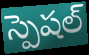
స్పెషల్